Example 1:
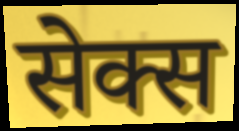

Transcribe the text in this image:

सेक्स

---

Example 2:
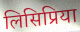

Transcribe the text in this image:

लिसिप्रिया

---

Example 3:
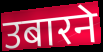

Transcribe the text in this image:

उबारने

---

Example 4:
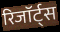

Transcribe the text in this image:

रिजॉर्ट्स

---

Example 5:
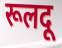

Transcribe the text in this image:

रूलदू